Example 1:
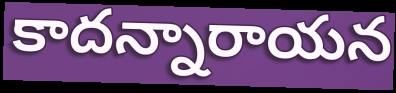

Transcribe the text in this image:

కాదన్నారాయన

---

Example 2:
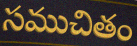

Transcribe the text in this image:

సముచితం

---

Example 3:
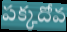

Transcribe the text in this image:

పక్కదోవ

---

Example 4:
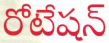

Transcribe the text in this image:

రోటేషన్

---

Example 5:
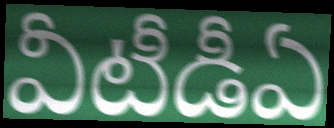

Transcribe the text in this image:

వీటీడీఏ